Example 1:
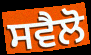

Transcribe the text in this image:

ਸਵੈਲੋ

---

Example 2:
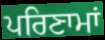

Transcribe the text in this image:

ਪਰਿਣਾਮਾਂ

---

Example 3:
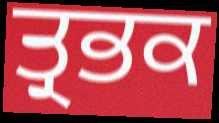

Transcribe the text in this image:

ਤ੍ਰਭਕ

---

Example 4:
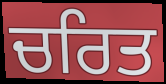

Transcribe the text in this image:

ਚਰਿਤ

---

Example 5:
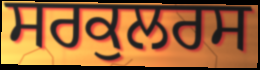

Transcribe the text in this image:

ਸਰਕੁਲਰਸ